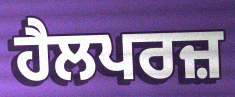
ਹੈਲਪਰਜ਼